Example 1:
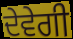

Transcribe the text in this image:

ਦੇਵੇਗੀ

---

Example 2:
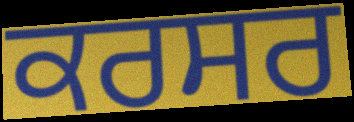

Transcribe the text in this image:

ਕਰਸਰ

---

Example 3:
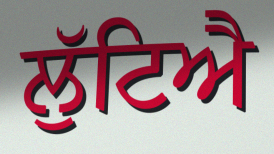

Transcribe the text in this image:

ਲੁੱਟਿਐ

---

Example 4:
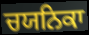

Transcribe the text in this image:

ਚਯਨਿਕਾ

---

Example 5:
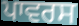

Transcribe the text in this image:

ਪਾਵਰਸ